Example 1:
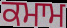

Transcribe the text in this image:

ਕਮਾਮ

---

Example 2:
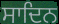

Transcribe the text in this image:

ਸਾਦਿਨ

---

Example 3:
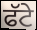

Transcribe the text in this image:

ਫੱਟੇ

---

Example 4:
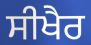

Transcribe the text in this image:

ਸੀਖੈਰ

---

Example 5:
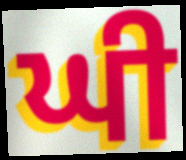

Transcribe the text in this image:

ਘੀ